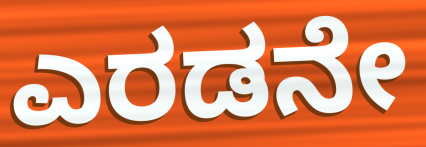
ಎರಡನೇ